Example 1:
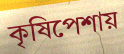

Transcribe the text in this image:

কৃষিপেশায়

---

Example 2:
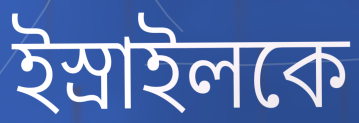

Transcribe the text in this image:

ইস্রাইলকে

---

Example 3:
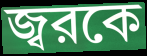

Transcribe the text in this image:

জ্বরকে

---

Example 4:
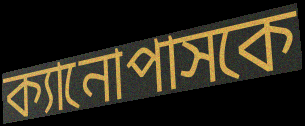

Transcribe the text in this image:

ক্যানোপাসকে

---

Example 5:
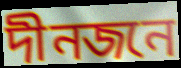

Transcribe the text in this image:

দীনজনে